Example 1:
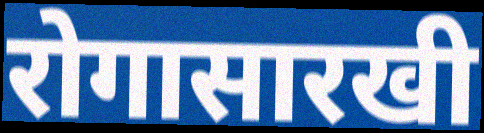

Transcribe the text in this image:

रोगासारखी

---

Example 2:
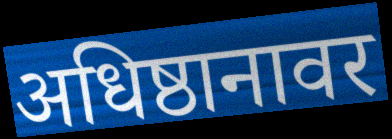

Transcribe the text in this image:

अधिष्ठानावर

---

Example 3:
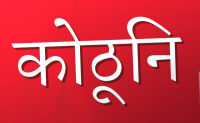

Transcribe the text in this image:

कोठूनि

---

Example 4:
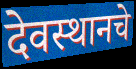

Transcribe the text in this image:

देवस्थानचे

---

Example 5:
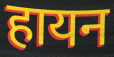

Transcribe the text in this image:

हायन